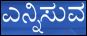
ಎನ್ನಿಸುವ